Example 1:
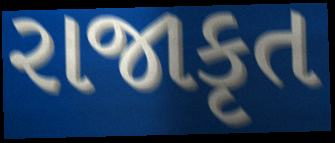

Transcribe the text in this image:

રાજાકૃત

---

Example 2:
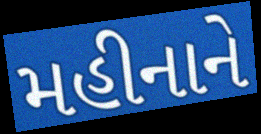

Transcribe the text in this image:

મહીનાને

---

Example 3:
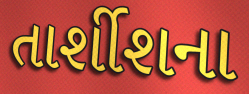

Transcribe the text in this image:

તાર્શીશના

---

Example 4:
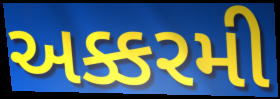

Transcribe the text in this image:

અક્કરમી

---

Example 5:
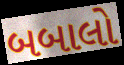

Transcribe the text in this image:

બબાલો